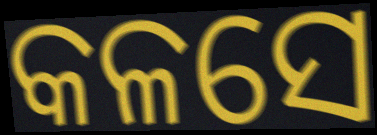
କଳସେ